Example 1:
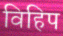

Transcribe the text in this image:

विहिप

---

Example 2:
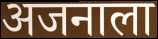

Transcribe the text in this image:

अजनाला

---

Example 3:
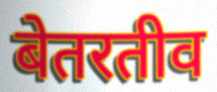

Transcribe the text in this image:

बेतरतीव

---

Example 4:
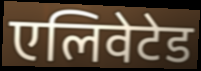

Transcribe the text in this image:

एलिवेटेड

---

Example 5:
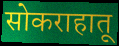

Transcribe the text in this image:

सोकराहातू